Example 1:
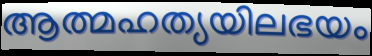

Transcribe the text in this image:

ആത്മഹത്യയിലഭയം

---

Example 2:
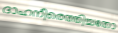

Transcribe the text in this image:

ദാഹനീരെത്തിച്ചതോ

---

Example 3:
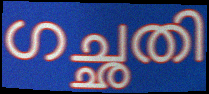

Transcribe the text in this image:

ഗച്ഛതി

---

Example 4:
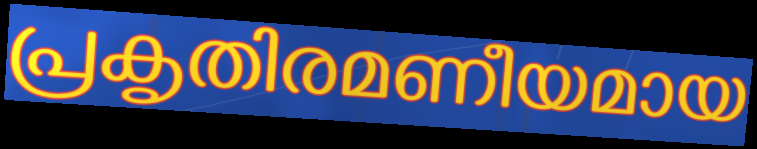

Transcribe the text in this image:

പ്രകൃതിരമണീയമായ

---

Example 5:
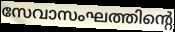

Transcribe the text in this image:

സേവാസംഘത്തിന്റെ